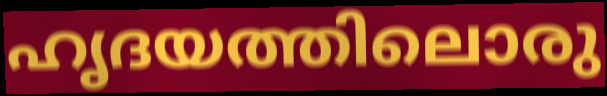
ഹൃദയത്തിലൊരു